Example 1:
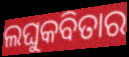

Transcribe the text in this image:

ଲଘୁକବିତାର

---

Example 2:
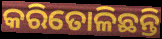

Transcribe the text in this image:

କରିତୋଳିଛନ୍ତି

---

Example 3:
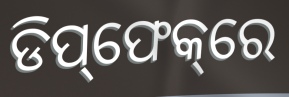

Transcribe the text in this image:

ଡିପ୍‌ଫେକ୍‌ରେ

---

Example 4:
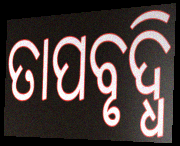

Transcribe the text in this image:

ତାପବୃଦ୍ଧି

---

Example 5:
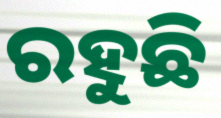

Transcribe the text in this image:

ରହୁଛି